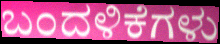
ಬಂದಳಿಕೆಗಳು